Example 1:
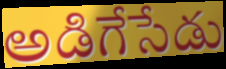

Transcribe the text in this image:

అడిగేసేడు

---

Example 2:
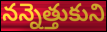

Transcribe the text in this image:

నన్నెత్తుకుని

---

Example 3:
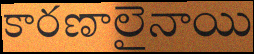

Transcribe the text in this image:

కారణాలైనాయి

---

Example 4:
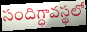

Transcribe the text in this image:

సందిగ్ధావస్థలో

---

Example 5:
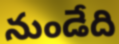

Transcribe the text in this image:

నుండేది